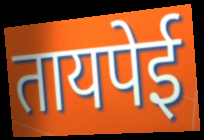
तायपेई